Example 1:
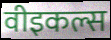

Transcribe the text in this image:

वीइकल्‍स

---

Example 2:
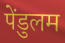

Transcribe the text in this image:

पेंडुलम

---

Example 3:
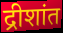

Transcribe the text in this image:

द्रीशांत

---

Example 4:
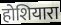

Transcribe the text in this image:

होशियारा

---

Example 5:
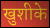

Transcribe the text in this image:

खुशीके